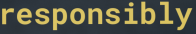
responsibly